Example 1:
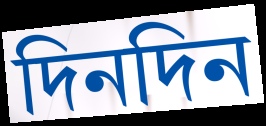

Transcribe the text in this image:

দিনদিন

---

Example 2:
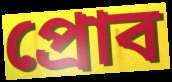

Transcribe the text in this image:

প্রোব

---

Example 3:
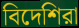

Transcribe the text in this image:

বিদেশিরা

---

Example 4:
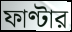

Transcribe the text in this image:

ফাণ্টার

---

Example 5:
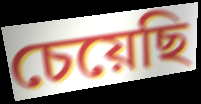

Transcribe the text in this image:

চেয়েছি